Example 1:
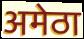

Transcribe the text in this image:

अमेठा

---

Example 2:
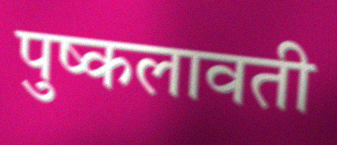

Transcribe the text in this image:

पुष्कलावती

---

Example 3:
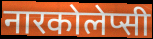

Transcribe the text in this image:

नारकोलेप्सी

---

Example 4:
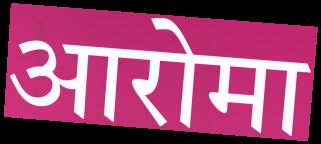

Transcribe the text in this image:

आरोमा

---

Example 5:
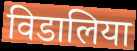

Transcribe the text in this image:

विडालिया